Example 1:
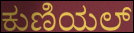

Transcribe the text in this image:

ಕುಣಿಯಲ್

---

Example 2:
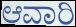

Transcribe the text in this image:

ಆವಾರಿ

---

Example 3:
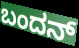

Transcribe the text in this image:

ಬಂದನ್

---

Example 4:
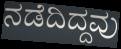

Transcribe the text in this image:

ನಡೆದಿದ್ದವು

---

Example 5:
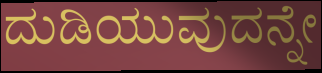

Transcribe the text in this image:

ದುಡಿಯುವುದನ್ನೇ